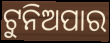
ଟୁନିଅପାର